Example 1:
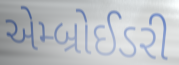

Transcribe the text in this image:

એમ્બ્રોઈડરી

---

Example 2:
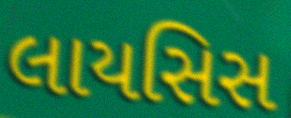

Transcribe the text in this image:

લાયસિસ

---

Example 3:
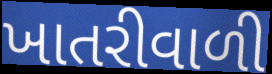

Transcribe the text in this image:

ખાતરીવાળી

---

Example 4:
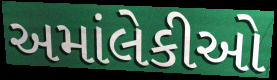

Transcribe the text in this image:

અમાંલેકીઓ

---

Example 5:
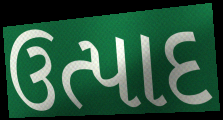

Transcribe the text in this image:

ઉત્પાદ